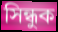
সিন্ধুক